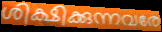
ശിക്ഷിക്കുന്നവരേ